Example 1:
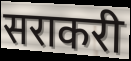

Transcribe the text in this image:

सराकरी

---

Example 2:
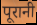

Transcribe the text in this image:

पूरानी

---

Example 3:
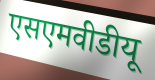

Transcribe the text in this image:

एसएमवीडीयू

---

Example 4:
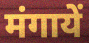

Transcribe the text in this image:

मंगायें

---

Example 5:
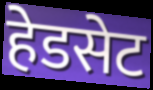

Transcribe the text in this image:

हेडसेट